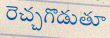
రెచ్చగొడుతూ